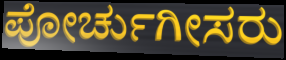
ಪೋರ್ಚುಗೀಸರು